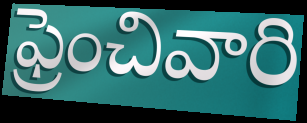
ఫ్రెంచివారి